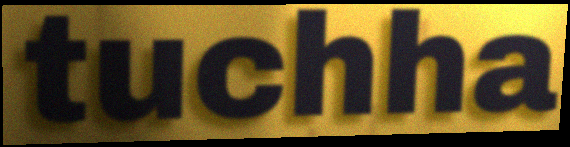
tuchha